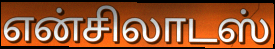
என்சிலாடஸ்